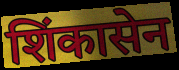
शिंकासेन